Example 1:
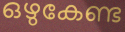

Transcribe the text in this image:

ഒഴുകേണ്ട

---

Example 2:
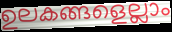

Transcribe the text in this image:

ഉലകങ്ങളെല്ലാം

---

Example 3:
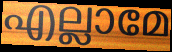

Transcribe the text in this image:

എല്ലാമേ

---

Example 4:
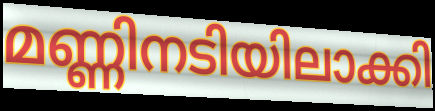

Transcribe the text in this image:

മണ്ണിനടിയിലാക്കി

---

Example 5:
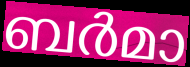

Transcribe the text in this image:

ബർമാ